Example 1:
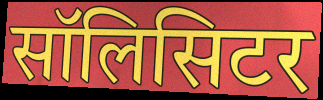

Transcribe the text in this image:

सॉलिसिटर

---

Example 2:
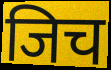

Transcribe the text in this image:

जिच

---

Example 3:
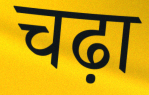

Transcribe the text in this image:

चढ़ा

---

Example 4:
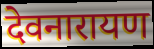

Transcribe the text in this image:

देवनारायण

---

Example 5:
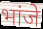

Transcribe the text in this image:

भांजे